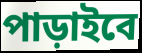
পাড়াইবে